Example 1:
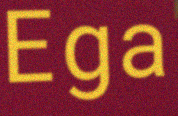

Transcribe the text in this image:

Ega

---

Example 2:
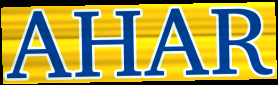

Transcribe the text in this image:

AHAR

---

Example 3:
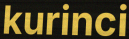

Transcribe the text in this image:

kurinci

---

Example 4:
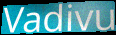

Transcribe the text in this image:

Vadivu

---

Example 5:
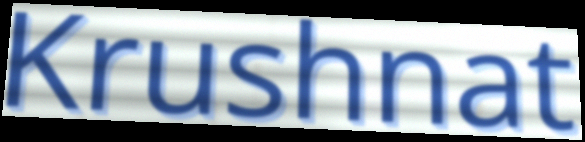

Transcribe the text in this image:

Krushnat